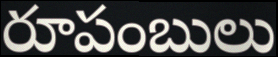
రూపంబులు